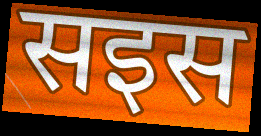
सइस